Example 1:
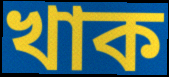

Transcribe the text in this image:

খাক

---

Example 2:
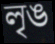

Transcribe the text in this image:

লৃঙ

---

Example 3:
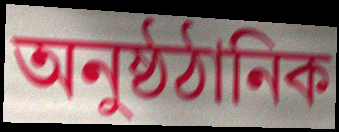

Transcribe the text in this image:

অনুষ্ঠঠানিক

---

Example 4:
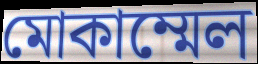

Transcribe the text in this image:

মোকাম্মেল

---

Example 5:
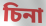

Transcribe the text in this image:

চিনা